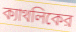
ক্যাথলিকের